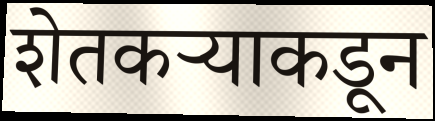
शेतकऱ्याकडून